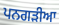
ਪਨਗੜੀਆ